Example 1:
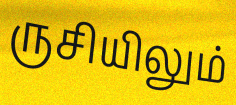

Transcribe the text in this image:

ருசியிலும்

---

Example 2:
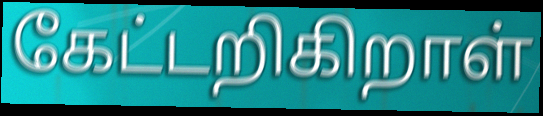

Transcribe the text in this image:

கேட்டறிகிறாள்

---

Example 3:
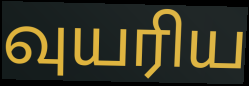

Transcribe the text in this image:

வுயரிய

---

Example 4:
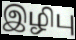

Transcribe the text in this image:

இழிபு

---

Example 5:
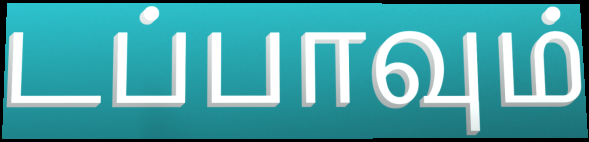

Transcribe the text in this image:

டப்பாவும்